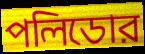
পলিডোর